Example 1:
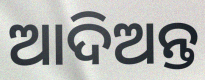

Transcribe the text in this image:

ଆଦିଅନ୍ତ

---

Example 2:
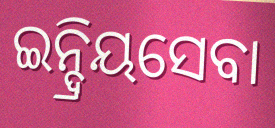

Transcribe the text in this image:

ଇନ୍ଦ୍ରିୟସେବା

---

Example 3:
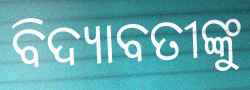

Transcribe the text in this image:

ବିଦ୍ୟାବତୀଙ୍କୁ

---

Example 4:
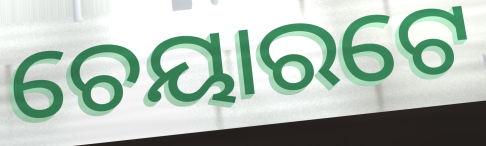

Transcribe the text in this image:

ଚେୟାରଟେ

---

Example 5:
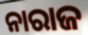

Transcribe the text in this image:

ନାରାଜ